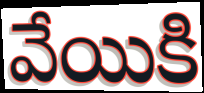
వేయికి